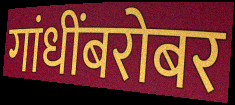
गांधींबरोबर